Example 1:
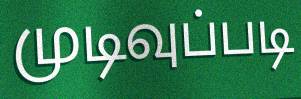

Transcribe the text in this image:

முடிவுப்படி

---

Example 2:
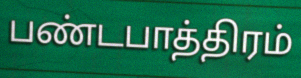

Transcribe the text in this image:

பண்டபாத்திரம்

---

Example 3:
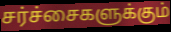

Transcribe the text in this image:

சர்ச்சைகளுக்கும்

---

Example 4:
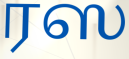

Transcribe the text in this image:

ரஸ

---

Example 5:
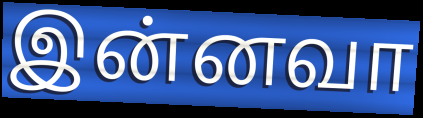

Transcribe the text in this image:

இன்னவா